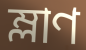
ম্লাণ